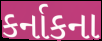
કર્નાકના